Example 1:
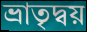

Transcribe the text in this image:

ভ্রাতৃদ্বয়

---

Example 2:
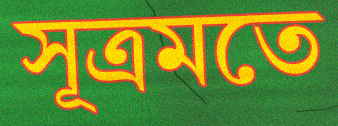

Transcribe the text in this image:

সূত্রমতে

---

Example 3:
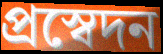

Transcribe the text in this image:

প্রস্বেদন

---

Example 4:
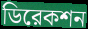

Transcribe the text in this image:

ডিরেকশন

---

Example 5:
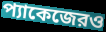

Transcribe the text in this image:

প্যাকেজেরও